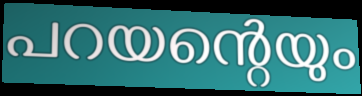
പറയന്റെയും